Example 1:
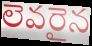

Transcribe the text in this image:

లెవరైన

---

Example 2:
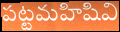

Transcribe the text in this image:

పట్టమహిషివి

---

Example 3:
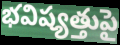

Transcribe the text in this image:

భవిష్యత్తుపై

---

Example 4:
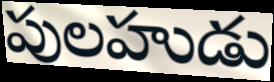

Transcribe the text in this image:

పులహుడు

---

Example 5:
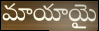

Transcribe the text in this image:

మాయాయై